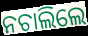
ନଚାଲିଲେ